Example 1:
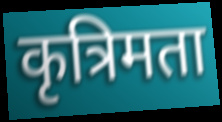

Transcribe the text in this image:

कृत्रिमता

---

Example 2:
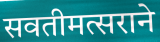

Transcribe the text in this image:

सवतीमत्सराने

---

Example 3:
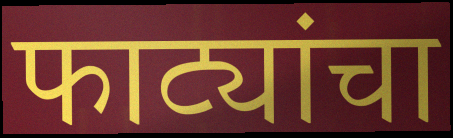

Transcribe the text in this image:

फाट्यांचा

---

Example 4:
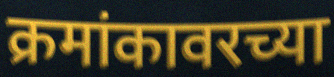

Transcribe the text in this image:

क्रमांकावरच्या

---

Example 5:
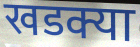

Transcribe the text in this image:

खडक्या